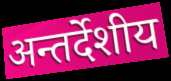
अन्तर्देशीय